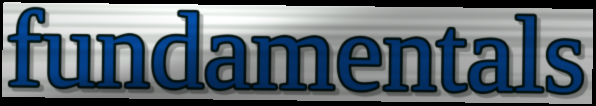
fundamentals